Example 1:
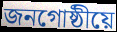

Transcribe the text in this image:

জনগোষ্ঠীয়ে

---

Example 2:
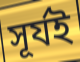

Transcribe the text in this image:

সূৰ্যই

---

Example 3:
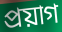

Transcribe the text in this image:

প্ৰয়াগ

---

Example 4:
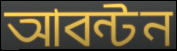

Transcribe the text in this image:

আবন্টন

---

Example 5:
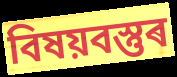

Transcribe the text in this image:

বিষয়বস্তুৰ